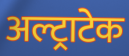
अल्‍ट्राटेक